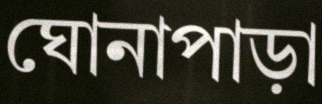
ঘোনাপাড়া